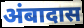
अंबादास